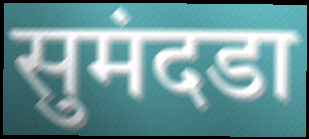
सुमंदडा